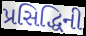
પ્રસિદ્ધિની